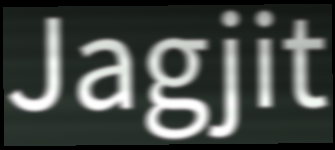
Jagjit